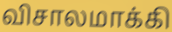
விசாலமாக்கி